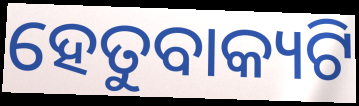
ହେତୁବାକ୍ୟଟି